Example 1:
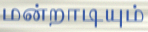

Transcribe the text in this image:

மன்றாடியும்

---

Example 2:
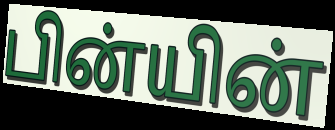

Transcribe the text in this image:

பின்யின்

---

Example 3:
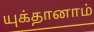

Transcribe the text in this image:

யுக்தானாம்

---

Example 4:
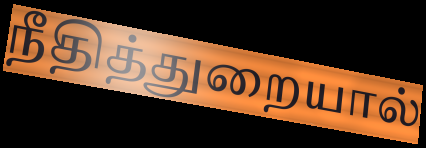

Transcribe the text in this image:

நீதித்துறையால்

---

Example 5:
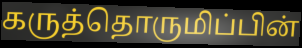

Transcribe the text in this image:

கருத்தொருமிப்பின்